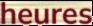
heures